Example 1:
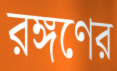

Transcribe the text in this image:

রঙ্গণের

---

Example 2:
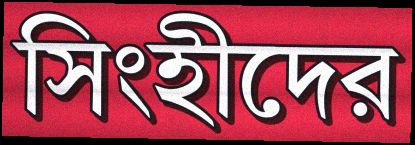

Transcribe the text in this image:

সিংহীদের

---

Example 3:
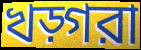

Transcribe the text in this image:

খড়্গরা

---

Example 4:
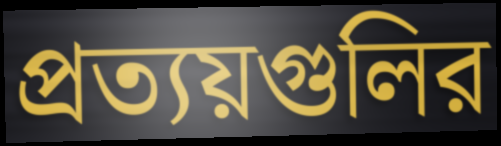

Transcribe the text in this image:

প্রত্যয়গুলির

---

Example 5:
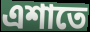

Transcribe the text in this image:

এশাতে